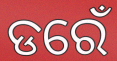
ଡରେଁ